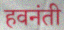
हवनंती